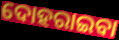
ଦୋହରାଇବା